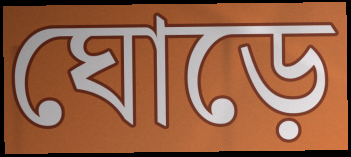
ঘোড়ে